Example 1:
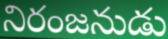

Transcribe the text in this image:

నిరంజనుడు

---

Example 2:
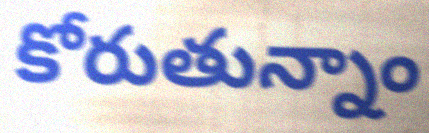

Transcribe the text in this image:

కోరుతున్నాం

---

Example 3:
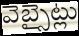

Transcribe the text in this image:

వెబ్సైట్లు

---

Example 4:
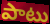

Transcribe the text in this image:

పాటు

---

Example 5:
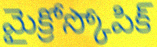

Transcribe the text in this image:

మైక్రోస్కోపిక్